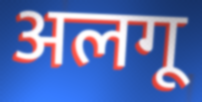
अलगू